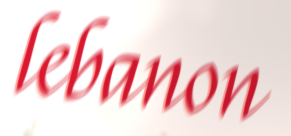
lebanon